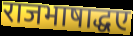
राजभाषाद्धए